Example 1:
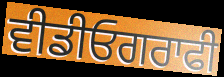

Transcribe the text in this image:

ਵੀਡੀਓਗਰਾਫੀ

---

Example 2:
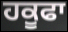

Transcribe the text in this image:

ਹਕੂਫਾ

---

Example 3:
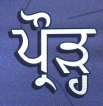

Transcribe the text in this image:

ਪ੍ਰੌੜ੍ਹ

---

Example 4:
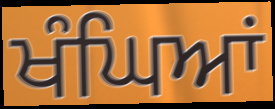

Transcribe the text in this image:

ਖੰਘਿਆਂ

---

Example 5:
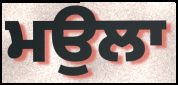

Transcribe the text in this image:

ਮਉਲਾ